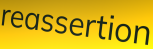
reassertion